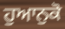
ਹੁਆਨੁਕੋ